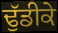
ਢੁੱਡੀਕੇ